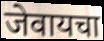
जेवायचा